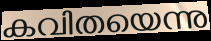
കവിതയെന്നു